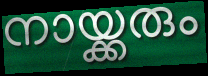
നായ്ക്കരും